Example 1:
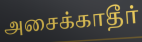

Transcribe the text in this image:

அசைக்காதீர்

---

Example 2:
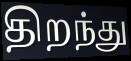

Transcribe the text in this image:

திறந்து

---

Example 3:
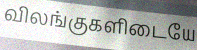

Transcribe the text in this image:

விலங்குகளிடையே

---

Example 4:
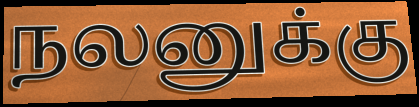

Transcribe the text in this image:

நலனுக்கு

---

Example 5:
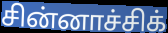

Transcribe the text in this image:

சின்னாச்சிக்